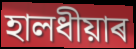
হালধীয়াৰ